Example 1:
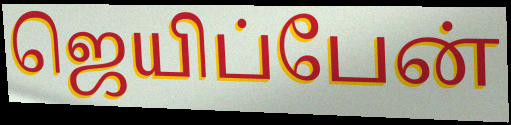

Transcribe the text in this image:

ஜெயிப்பேன்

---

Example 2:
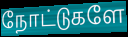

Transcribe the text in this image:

நோட்டுகளே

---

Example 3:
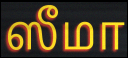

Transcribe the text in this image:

ஸீமா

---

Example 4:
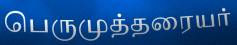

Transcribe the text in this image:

பெருமுத்தரையர்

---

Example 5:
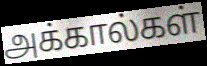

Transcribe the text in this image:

அக்கால்கள்